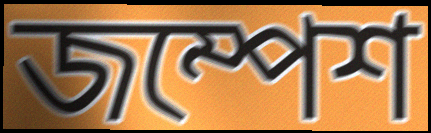
জম্পেশ